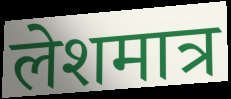
लेशमात्र